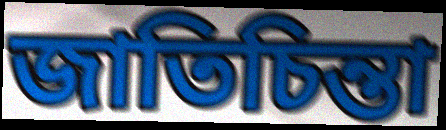
জাতিচিন্তা